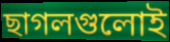
ছাগলগুলোই